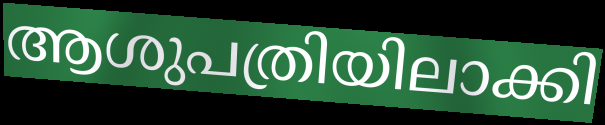
ആശുപത്രിയിലാക്കി